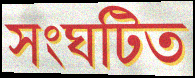
সংঘটিত